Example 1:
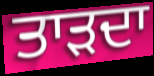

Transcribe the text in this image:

ਤਾੜਦਾ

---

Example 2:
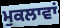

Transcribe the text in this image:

ਮੁਕਲਾਵਾਂ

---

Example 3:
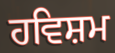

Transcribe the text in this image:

ਹਵਿਸ਼ਮ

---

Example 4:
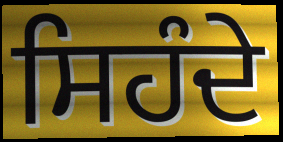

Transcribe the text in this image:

ਸਿਹੰਦੇ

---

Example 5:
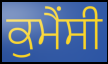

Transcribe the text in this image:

ਕੁਮੈਂਸੀ